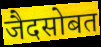
जैदसोबत